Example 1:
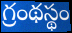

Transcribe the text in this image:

గ్రంథస్థం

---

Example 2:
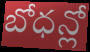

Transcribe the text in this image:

బోధన్లో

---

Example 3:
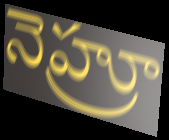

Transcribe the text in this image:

నెహ్రూ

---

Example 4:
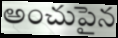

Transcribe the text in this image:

అంచుపైన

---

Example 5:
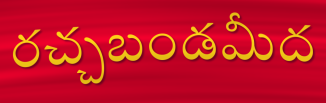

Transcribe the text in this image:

రచ్చబండమీద